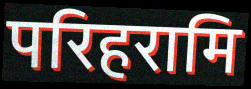
परिहरामि